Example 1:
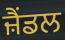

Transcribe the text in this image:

ਜ਼ੈਂਡਲ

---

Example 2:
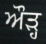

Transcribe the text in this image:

ਔੜ੍ਹ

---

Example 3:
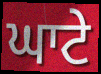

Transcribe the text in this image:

ਘਾਟੇ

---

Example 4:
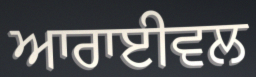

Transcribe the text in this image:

ਆਰਾਈਵਲ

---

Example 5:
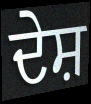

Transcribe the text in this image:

ਦੇਸ਼